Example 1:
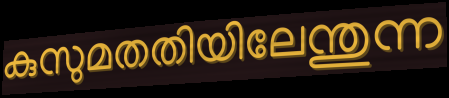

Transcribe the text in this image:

കുസുമതതിയിലേന്തുന്ന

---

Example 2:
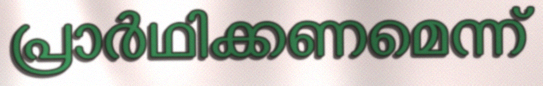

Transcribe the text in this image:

പ്രാർഥിക്കണമെന്ന്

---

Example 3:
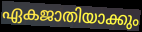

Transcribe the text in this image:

ഏകജാതിയാക്കും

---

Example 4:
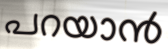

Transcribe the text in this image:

പറയാൻ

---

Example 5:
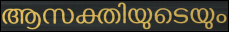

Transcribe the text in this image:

ആസക്തിയുടെയും